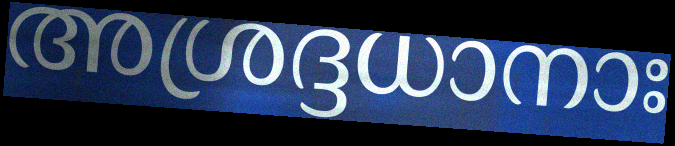
അശ്രദ്ദധാനാഃ